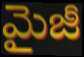
మైజీ